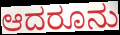
ಆದರೂನು